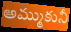
అమ్ముకునీ